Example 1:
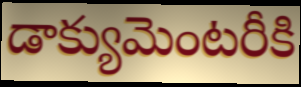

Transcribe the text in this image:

డాక్యుమెంటరీకి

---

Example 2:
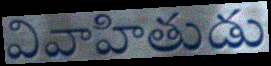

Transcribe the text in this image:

వివాహితుడు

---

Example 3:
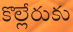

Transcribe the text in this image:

కొల్లేరుకు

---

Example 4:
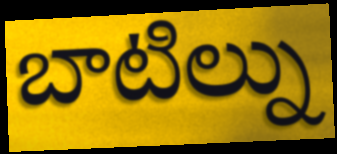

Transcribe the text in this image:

బాటిల్ను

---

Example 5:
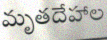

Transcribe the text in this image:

మృతదేహాల